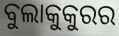
ବୁଲାକୁକୁରର